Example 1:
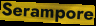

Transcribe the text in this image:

Serampore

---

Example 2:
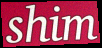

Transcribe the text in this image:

shim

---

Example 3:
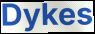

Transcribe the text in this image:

Dykes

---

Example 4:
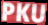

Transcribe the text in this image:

PKU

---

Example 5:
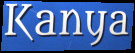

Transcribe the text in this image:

Kanya